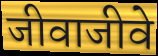
जीवाजीवे